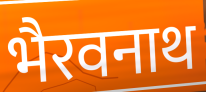
भैरवनाथ